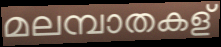
മലമ്പാതകള്